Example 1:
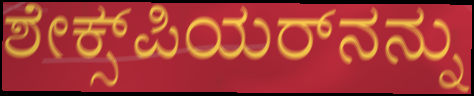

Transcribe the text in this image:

ಶೇಕ್ಸ್‌ಪಿಯರ್‌ನನ್ನು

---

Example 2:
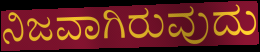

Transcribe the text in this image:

ನಿಜವಾಗಿರುವುದು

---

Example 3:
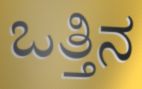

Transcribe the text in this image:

ಒತ್ತಿನ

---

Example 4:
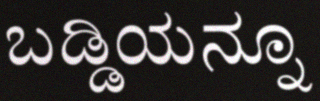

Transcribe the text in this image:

ಬಡ್ಡಿಯನ್ನೂ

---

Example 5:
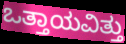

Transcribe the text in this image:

ಒತ್ತಾಯವಿತ್ತು